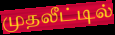
முதலீட்டில்